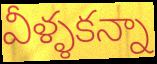
వీళ్ళకన్నా